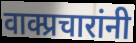
वाक्प्रचारांनी